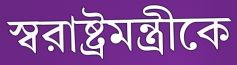
স্বরাষ্ট্রমন্ত্রীকে